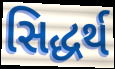
સિદ્ધર્થ